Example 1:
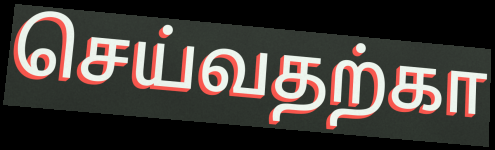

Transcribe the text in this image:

செய்வதற்கா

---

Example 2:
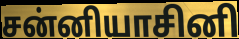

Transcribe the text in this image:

சன்னியாசினி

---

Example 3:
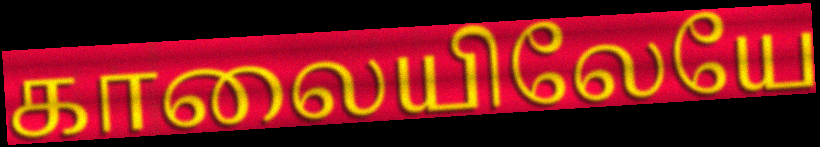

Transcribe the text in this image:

காலையிலேயே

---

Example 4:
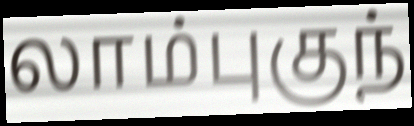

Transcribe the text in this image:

லாம்புகுந்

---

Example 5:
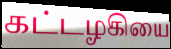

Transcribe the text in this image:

கட்டழகியை